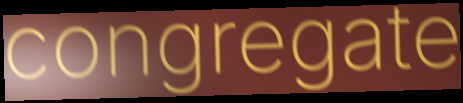
congregate